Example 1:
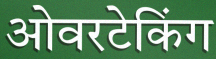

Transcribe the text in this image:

ओवरटेकिंग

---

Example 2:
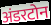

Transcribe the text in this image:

अंडरटोन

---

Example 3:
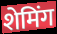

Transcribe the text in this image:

शेमिंग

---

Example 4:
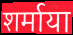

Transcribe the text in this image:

शर्माया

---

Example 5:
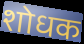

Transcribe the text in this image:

शोधक